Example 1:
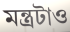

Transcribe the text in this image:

মন্ত্রটাও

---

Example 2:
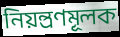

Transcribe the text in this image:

নিয়ন্ত্রণমূলক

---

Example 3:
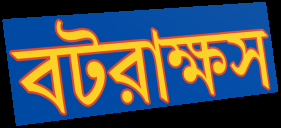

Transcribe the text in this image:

বটরাক্ষস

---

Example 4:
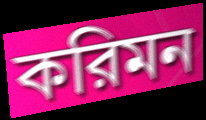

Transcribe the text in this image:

করিমন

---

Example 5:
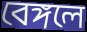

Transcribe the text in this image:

বেঙ্গলে